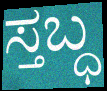
ಸ್ತಬ್ಧ